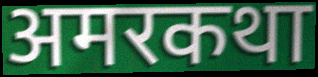
अमरकथा